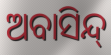
ଅବାସିନ୍ଦ୍